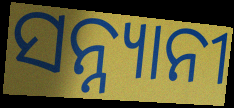
ସନ୍ନ୍ୟାନୀ